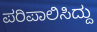
ಪರಿಪಾಲಿಸಿದ್ದು